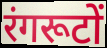
रंगरूटों